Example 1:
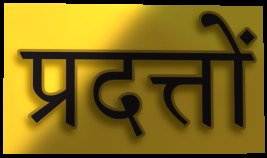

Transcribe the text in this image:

प्रदत्तों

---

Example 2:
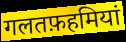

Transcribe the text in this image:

गलतफ़हमियां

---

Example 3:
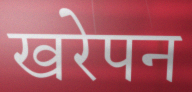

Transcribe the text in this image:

खरेपन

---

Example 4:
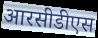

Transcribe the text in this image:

आरसीडीएस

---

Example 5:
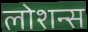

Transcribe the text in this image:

लोशन्स